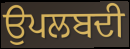
ਉਪਲਬਦੀ